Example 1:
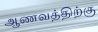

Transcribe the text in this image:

ஆணவத்திற்கு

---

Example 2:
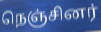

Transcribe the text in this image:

நெஞ்சினர்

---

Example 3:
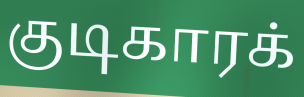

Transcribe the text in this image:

குடிகாரக்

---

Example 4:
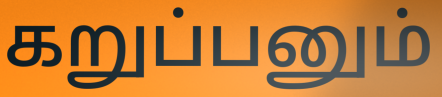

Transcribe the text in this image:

கறுப்பனும்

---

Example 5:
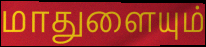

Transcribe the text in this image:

மாதுளையும்